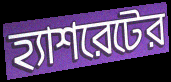
হ্যাশরেটের